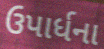
ઉપાર્ધના